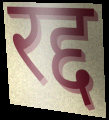
रद्द